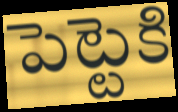
పెట్టెకి